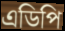
এডিপি